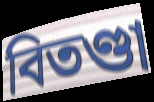
বিতণ্ডা